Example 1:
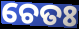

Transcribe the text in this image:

ଚେତଃ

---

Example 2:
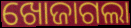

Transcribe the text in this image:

ଖୋଜାଗଲା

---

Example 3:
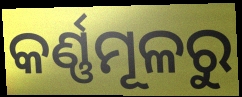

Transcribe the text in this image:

କର୍ଣ୍ଣମୂଳରୁ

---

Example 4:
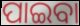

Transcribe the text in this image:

ପାଇବା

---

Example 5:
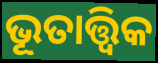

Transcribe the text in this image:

ଭୂତାତ୍ତ୍ୱିକ